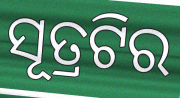
ସୂତ୍ରଟିର